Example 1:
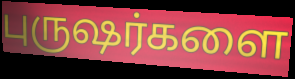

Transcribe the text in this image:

புருஷர்களை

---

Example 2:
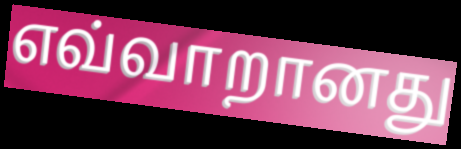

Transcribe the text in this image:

எவ்வாறானது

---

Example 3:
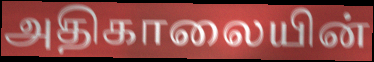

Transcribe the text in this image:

அதிகாலையின்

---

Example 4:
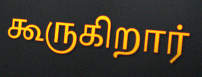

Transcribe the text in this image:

கூருகிறார்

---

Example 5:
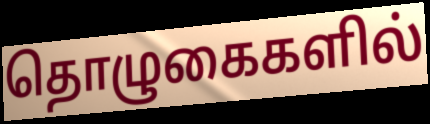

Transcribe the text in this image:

தொழுகைகளில்